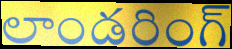
లాండరింగ్